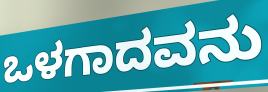
ಒಳಗಾದವನು